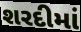
શરદીમાં